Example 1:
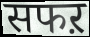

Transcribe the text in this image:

सफऱ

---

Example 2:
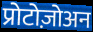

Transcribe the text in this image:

प्रोटोज़ोअन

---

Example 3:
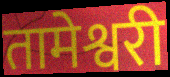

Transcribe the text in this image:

तामेश्वरी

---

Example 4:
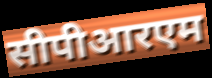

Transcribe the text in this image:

सीपीआरएम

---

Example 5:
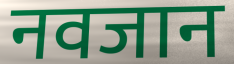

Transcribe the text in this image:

नवजान